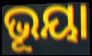
ଭୂୟା